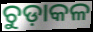
ଚୁଡ଼ାକଳ